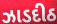
ઝાડદીઠ